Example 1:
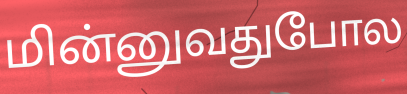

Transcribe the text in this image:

மின்னுவதுபோல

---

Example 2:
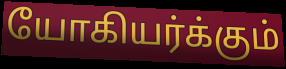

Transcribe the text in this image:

யோகியர்க்கும்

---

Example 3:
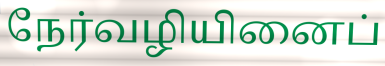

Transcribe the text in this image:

நேர்வழியினைப்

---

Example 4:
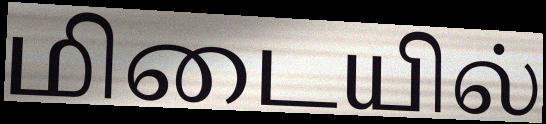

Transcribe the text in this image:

மிடையில்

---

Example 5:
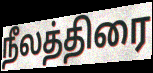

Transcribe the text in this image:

நீலத்திரை